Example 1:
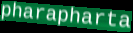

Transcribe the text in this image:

pharapharta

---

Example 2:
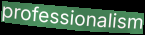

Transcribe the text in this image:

professionalism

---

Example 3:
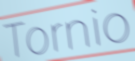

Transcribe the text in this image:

Tornio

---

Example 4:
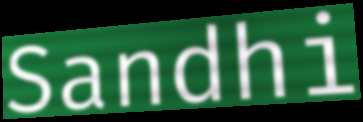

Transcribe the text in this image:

Sandhi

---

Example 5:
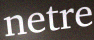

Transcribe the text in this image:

netre